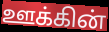
ஊக்கின்